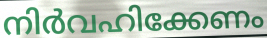
നിർവഹിക്കേണം